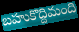
బహుకొద్దిమంది